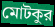
মোটকুর